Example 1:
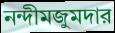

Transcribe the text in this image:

নন্দীমজুমদার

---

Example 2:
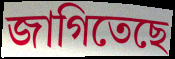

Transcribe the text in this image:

জাগিতেছে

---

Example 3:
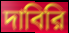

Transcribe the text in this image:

দাবিরি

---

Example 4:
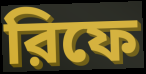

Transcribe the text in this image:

রিফে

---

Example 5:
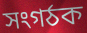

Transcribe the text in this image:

সংগঠক